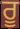
ਰੂ